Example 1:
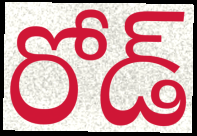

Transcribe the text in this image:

రోడ్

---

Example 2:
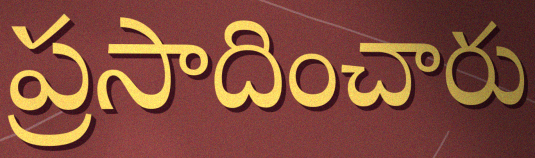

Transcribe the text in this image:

ప్రసాదించారు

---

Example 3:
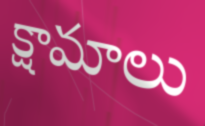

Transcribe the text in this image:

క్షామాలు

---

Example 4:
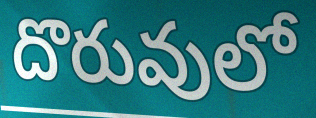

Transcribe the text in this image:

దొరువులో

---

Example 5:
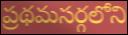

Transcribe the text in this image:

ప్రథమసర్గలోని